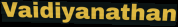
Vaidiyanathan